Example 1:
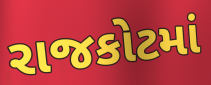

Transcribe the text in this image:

રાજકોટમાં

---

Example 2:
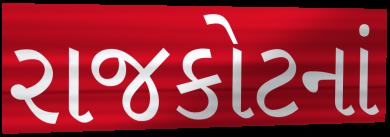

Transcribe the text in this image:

રાજકોટનાં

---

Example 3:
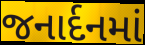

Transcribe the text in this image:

જનાર્દનમાં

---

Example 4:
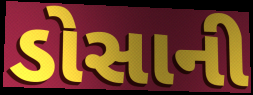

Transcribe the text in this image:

ડોસાની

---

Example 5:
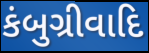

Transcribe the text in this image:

કંબુગ્રીવાદિ